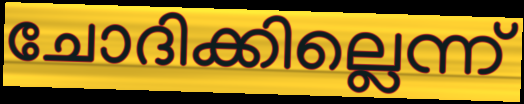
ചോദിക്കില്ലെന്ന്